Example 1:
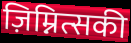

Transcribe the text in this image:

ज़िम्नित्सकी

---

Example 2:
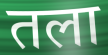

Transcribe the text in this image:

तला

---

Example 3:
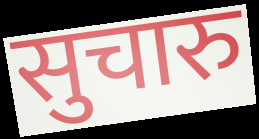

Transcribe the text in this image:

सुचारु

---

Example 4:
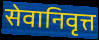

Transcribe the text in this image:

सेवानिवृत्त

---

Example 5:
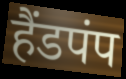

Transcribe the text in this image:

हैंडपंप